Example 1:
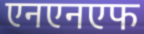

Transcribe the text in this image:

एनएनएफ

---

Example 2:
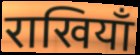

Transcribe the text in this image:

राखियाँ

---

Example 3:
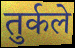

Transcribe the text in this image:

तुर्कले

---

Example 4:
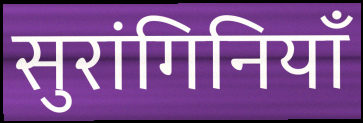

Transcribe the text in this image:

सुरांगिनियाँ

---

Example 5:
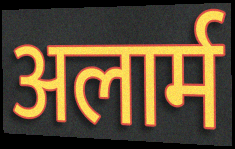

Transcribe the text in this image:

अलार्म